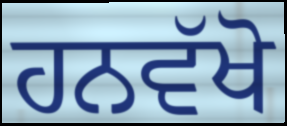
ਹਨਵੱਖੋ